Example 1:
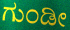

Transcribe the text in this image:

ಗುಂಡೀ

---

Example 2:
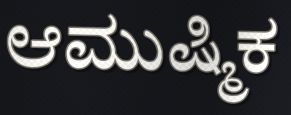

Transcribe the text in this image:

ಆಮುಷ್ಮಿಕ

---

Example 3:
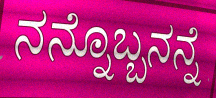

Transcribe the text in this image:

ನನ್ನೊಬ್ಬನನ್ನೆ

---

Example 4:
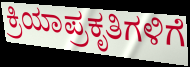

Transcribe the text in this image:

ಕ್ರಿಯಾಪ್ರಕೃತಿಗಳಿಗೆ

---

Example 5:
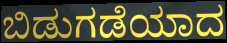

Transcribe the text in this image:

ಬಿಡುಗಡೆಯಾದ